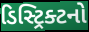
ડિસ્ટ્રિક્ટનો